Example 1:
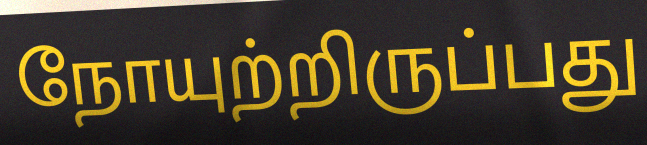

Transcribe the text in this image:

நோயுற்றிருப்பது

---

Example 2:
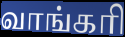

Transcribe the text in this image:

வாங்கரி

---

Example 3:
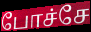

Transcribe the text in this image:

போச்சே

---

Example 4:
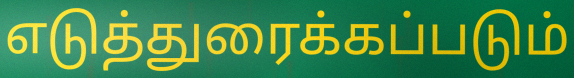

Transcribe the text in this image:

எடுத்துரைக்கப்படும்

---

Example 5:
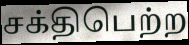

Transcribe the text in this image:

சக்திபெற்ற